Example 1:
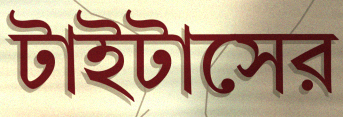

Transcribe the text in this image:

টাইটাসের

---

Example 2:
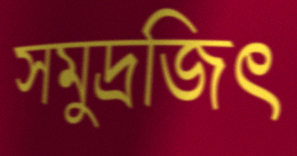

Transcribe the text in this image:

সমুদ্রজিৎ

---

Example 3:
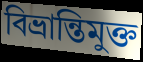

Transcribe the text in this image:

বিভ্রান্তিমুক্ত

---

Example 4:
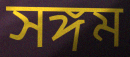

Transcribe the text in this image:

সঙ্গম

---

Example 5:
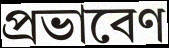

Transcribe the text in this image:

প্রভাবেণ